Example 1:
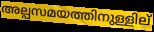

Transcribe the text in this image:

അല്പസമയത്തിനുള്ളില്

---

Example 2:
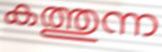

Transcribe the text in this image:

കത്തുന്ന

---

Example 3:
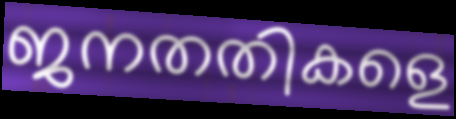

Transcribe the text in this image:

ജനതതികളെ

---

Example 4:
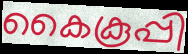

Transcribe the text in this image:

കൈകൂപ്പി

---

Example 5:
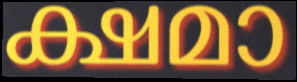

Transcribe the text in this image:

ക്ഷമാ